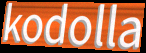
kodolla